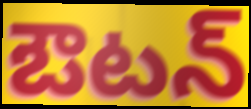
ఔటన్